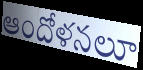
ఆందోళనలూ